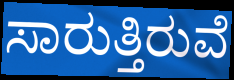
ಸಾರುತ್ತಿರುವೆ